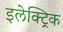
इलेक्ट्रिक